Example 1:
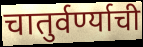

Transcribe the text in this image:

चातुर्वर्ण्याची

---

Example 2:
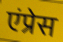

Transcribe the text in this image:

एंप्रेस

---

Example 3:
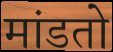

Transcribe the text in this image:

मांडतो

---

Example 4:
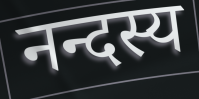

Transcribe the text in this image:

नन्दस्य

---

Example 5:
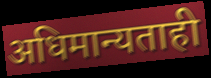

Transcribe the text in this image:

अधिमान्यताही